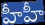
హీహీ